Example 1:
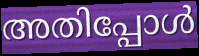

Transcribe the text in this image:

അതിപ്പോൾ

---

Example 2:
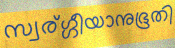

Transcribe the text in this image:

സ്വര്ഗ്ഗീയാനുഭൂതി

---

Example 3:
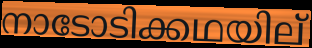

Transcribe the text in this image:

നാടോടിക്കഥയില്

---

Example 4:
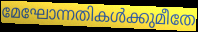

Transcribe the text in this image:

മേഘോന്നതികൾക്കുമീതേ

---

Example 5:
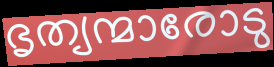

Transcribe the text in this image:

ഭൃത്യന്മാരോടു